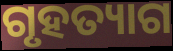
ଗୃହତ୍ୟାଗ